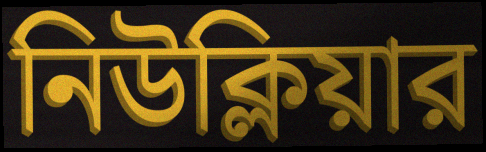
নিউক্লিয়ার